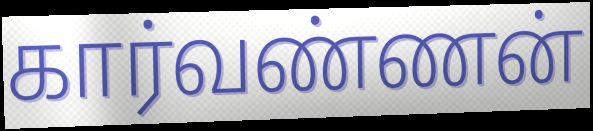
கார்வண்ணன்